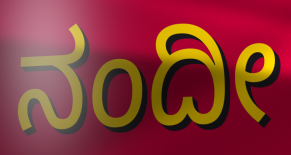
ನಂದೀ